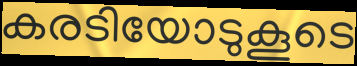
കരടിയോടുകൂടെ